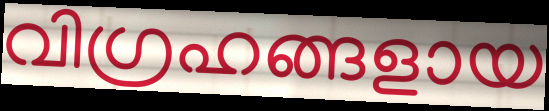
വിഗ്രഹങ്ങളായ